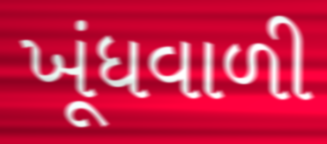
ખૂંધવાળી